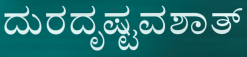
ದುರದೃಷ್ಟವಶಾತ್